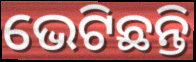
ଭେଟିଛନ୍ତି